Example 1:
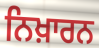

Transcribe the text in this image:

ਨਿਖ਼ਾਰਨ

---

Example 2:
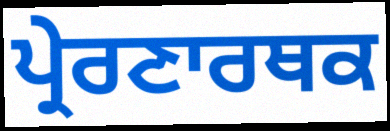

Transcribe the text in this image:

ਪ੍ਰੇਰਣਾਰਥਕ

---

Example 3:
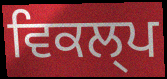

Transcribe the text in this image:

ਵਿਕਲ੍ਪ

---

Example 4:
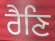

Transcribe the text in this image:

ਰੈਣਿ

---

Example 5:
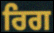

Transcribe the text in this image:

ਰਿਗ